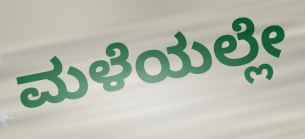
ಮಳೆಯಲ್ಲೇ